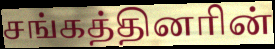
சங்கத்தினரின்